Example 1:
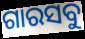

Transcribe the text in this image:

ଗାରସବୁ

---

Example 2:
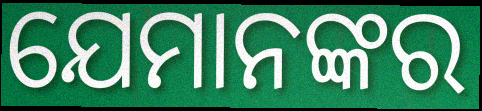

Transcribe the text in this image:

ଯେମାନଙ୍କର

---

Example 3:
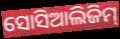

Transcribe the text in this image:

ସୋସିଆଲିଜିମ୍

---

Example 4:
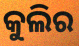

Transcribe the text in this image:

କୁଲିର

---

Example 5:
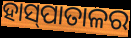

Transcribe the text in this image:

ହାସ୍‍ପାତାଳର